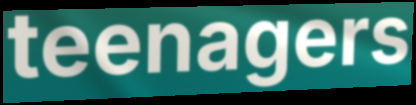
teenagers